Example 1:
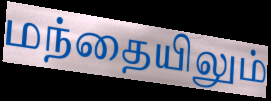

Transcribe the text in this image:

மந்தையிலும்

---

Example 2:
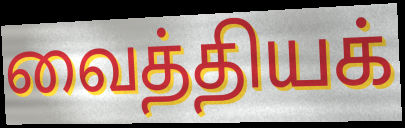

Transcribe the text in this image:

வைத்தியக்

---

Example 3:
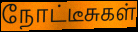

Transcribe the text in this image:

நோட்டீசுகள்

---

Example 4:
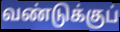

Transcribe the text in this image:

வண்டுக்குப்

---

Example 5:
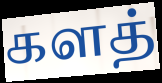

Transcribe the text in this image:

களத்